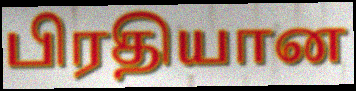
பிரதியான